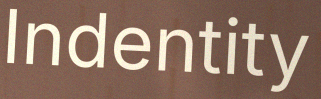
Indentity